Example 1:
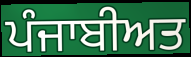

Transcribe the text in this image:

ਪੰਜਾਬੀਅਤ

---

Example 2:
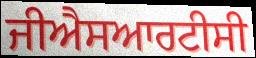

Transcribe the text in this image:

ਜੀਐਸਆਰਟੀਸੀ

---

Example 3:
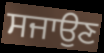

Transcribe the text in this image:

ਸਜਾਉਣ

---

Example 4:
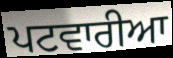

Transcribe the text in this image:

ਪਟਵਾਰੀਆ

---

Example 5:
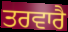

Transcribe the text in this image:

ਤਰਵਾਰੈ